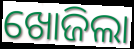
ଖୋଜିଲା